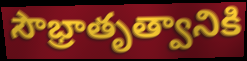
సౌభ్రాతృత్వానికి